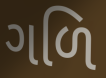
ગળિ